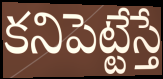
కనిపెట్టేస్తే